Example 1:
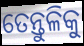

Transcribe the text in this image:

ତେନ୍ତୁଳିକୁ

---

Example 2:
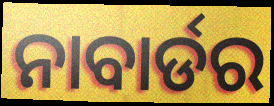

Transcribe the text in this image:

ନାବାର୍ଡର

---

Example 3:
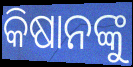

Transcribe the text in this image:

କିଷାନଙ୍କୁ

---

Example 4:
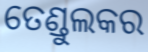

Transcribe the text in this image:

ତେଣ୍ଡୁଲକର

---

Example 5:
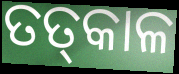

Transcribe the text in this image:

ତତ୍‌କାଳ